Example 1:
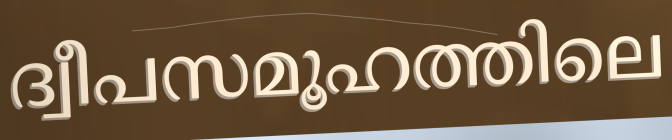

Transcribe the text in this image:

ദ്വീപസമൂഹത്തിലെ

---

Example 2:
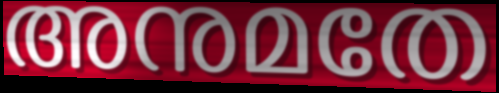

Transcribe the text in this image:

അനുമതേ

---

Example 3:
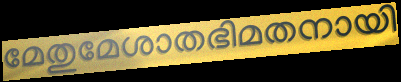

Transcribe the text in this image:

മേതുമേശാതഭിമതനായി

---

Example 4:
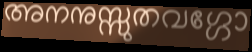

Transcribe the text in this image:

അനനുസ്സുതവഗ്ഗോ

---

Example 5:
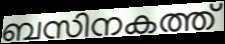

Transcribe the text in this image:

ബസിനകത്ത്